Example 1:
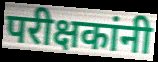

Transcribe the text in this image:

परीक्षकांनी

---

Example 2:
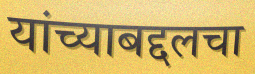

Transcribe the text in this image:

यांच्याबद्दलचा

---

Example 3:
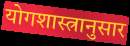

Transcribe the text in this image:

योगशास्त्रानुसार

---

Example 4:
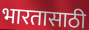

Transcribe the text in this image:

भारतासाठी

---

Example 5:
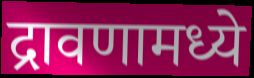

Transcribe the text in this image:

द्रावणामध्ये